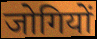
जोगियों